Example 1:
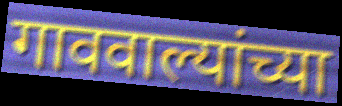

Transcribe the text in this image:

गाववाल्यांच्या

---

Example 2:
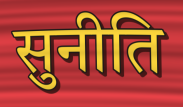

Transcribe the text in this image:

सुनीति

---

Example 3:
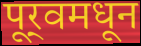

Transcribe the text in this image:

पूर्वमधून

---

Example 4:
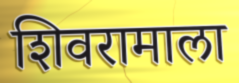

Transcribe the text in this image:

शिवरामाला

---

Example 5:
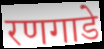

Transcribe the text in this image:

रणगाडे